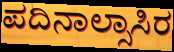
ಪದಿನಾಲ್ಸಾಸಿರ